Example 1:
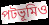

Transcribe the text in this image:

পটভূমিও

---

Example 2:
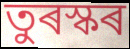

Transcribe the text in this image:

তুৰস্কৰ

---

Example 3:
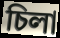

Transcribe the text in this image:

চিলা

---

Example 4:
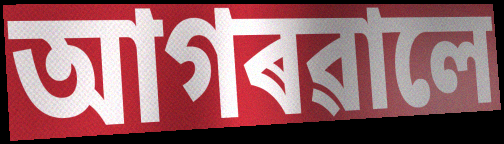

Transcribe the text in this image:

আগৰৱালে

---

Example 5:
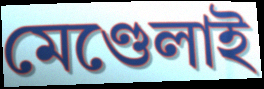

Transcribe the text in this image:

মেণ্ডেলাই